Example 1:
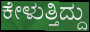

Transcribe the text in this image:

ಕೇಳುತ್ತಿದ್ದು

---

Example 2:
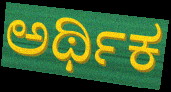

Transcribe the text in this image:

ಅರ್ಥಿಕ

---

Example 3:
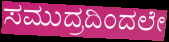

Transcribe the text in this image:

ಸಮುದ್ರದಿಂದಲೇ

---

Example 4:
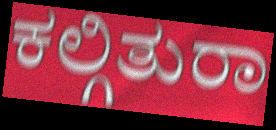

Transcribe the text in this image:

ಕಲ್ಗಿತುರಾ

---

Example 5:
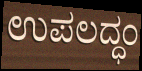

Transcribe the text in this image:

ಉಪಲದ್ಧಂ